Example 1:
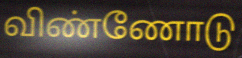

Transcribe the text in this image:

விண்ணோடு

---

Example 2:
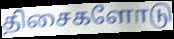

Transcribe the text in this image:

திசைகளோடு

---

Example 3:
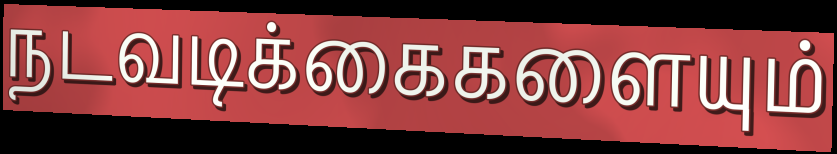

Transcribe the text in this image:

நடவடிக்கைகளையும்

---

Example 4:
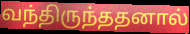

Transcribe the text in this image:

வந்திருந்ததனால்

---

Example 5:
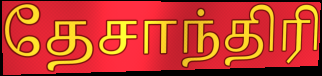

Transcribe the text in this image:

தேசாந்திரி